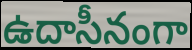
ఉదాసీనంగా